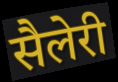
सैलेरी